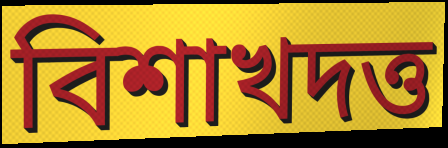
বিশাখদত্ত